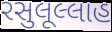
રસુલૂલ્લાહ